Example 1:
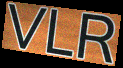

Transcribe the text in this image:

VLR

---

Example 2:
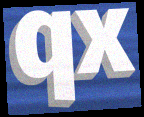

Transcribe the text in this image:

qx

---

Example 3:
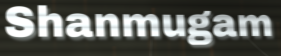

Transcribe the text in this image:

Shanmugam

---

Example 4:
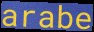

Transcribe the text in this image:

arabe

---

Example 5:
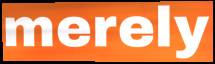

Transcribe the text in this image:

merely